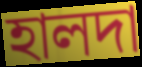
হালদা